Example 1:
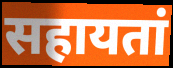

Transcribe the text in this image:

सहायतां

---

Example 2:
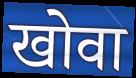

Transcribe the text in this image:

खोवा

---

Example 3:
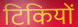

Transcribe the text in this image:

टिकियों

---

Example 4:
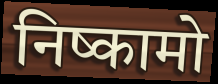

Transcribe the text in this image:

निष्कामो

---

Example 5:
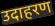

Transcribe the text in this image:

उदाहरण